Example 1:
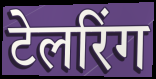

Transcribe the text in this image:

टेलरिंग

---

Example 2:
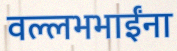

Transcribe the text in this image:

वल्लभभाईंना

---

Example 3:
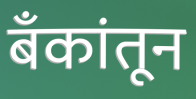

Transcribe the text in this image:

बँकांतून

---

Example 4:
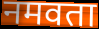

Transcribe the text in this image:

नमवता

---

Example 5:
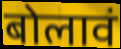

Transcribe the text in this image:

बोलावं